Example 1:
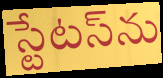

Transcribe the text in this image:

స్టేటస్‌ను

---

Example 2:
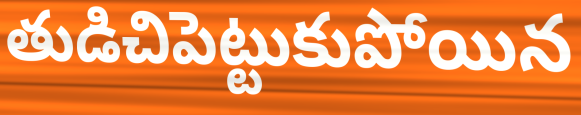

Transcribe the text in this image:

తుడిచిపెట్టుకుపోయిన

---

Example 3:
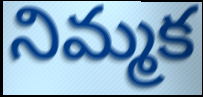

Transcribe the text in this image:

నిమ్మక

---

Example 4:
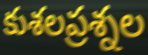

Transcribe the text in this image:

కుశలప్రశ్నల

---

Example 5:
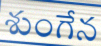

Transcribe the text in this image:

శుంగేన